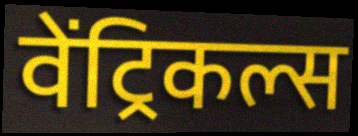
वेंट्रिकल्स